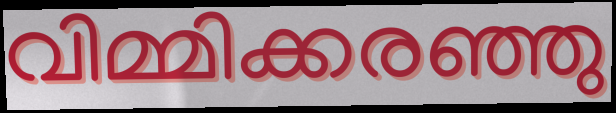
വിമ്മിക്കരഞ്ഞു